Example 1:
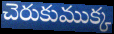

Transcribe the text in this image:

చెరుకుముక్క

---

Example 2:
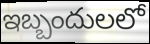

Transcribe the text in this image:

ఇబ్బందులలో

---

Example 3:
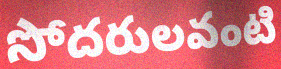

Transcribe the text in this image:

సోదరులవంటి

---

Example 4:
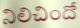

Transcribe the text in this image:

నిలిచిందో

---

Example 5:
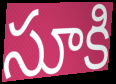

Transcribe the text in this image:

సూకి